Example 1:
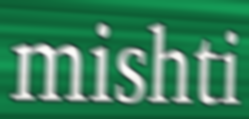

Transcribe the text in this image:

mishti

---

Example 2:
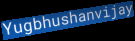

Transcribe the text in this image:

Yugbhushanvijay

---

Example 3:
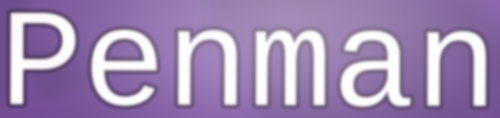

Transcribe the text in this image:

Penman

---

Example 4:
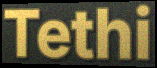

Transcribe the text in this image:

Tethi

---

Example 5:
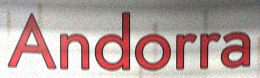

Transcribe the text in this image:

Andorra